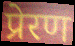
प्रेरण